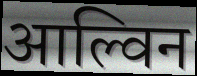
आल्विन